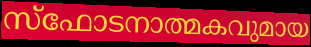
സ്ഫോടനാത്മകവുമായ